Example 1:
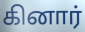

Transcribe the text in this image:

கினார்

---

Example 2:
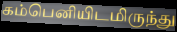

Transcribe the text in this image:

கம்பெனியிடமிருந்து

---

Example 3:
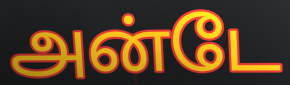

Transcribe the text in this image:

அன்டே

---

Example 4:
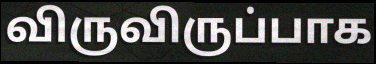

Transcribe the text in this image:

விருவிருப்பாக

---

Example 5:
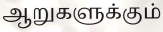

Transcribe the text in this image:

ஆறுகளுக்கும்